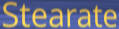
Stearate